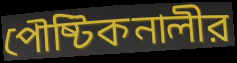
পৌষ্টিকনালীর